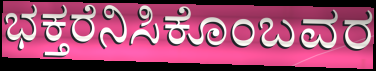
ಭಕ್ತರೆನಿಸಿಕೊಂಬವರ